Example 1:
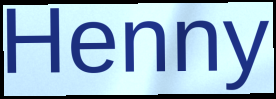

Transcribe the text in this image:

Henny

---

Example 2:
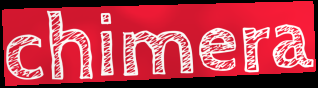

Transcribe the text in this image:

chimera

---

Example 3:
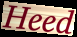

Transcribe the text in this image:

Heed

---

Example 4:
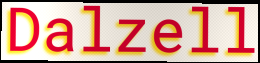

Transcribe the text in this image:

Dalzell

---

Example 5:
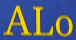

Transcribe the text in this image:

ALo